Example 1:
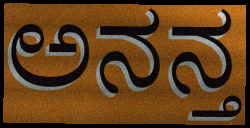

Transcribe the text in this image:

ಅನನ್ತ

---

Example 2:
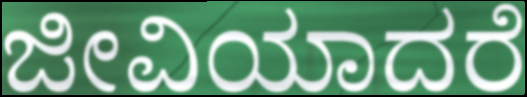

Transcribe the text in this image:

ಜೀವಿಯಾದರೆ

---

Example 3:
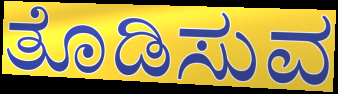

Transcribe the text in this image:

ತೊಡಿಸುವ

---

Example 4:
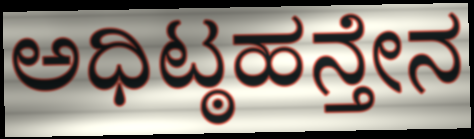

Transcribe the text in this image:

ಅಧಿಟ್ಠಹನ್ತೇನ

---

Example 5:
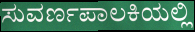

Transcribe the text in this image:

ಸುವರ್ಣಪಾಲಕಿಯಲ್ಲಿ